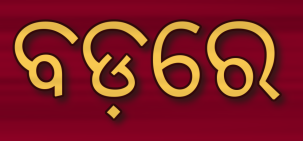
ବଡ଼ରେ